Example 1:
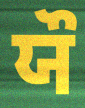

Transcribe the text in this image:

ਯੌ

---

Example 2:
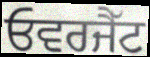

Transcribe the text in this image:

ਓਵਰਜੈੱਟ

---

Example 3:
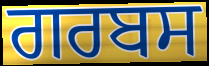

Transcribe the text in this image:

ਗਰਬਸ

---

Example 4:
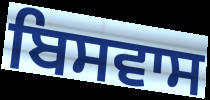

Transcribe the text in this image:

ਬਿਸਵਾਸ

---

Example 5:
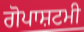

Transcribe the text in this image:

ਗੋਪਾਸ਼ਟਮੀ